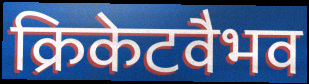
क्रिकेटवैभव